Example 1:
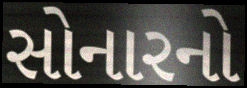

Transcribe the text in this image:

સોનારનો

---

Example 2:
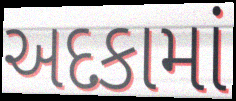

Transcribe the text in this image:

અદકામાં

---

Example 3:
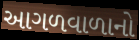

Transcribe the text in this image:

આગળવાળાનો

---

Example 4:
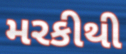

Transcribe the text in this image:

મરકીથી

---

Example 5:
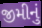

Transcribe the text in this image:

જીમીનું